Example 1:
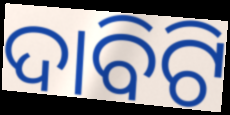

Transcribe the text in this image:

ଦାବିଟି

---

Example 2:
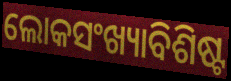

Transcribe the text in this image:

ଲୋକସଂଖ୍ୟାବିଶିଷ୍ଟ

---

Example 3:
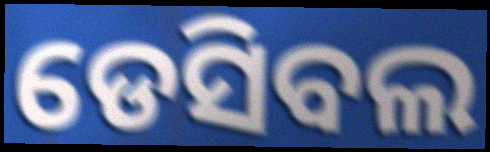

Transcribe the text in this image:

ଡେସିବଲ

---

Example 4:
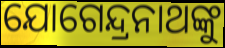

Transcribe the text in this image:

ଯୋଗେନ୍ଦ୍ରନାଥଙ୍କୁ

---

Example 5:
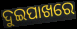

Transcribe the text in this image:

ଦୁଇପାଖରେ